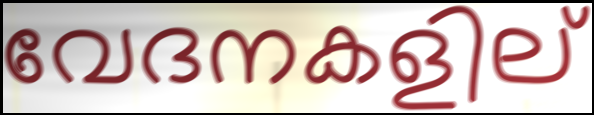
വേദനകളില്